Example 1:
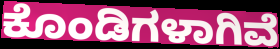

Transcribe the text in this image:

ಕೊಂಡಿಗಳಾಗಿವೆ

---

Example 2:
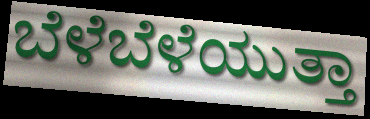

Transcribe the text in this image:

ಬೆಳೆಬೆಳೆಯುತ್ತಾ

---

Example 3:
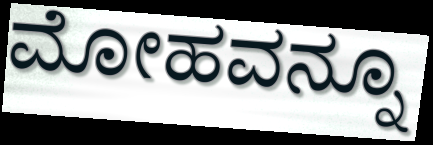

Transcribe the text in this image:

ಮೋಹವನ್ನೂ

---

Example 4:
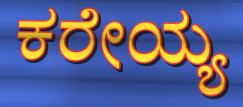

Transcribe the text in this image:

ಕರೇಯ್ಯ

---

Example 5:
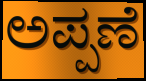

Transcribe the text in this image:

ಅಪ್ಪಣೆ